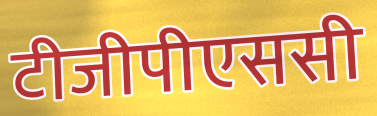
टीजीपीएससी